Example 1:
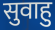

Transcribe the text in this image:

सुवाहु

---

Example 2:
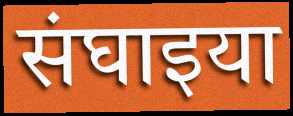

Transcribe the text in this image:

संघाइया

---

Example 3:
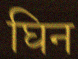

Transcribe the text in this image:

घिन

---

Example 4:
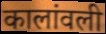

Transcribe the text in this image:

कालांवली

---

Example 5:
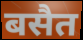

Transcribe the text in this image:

बसैत